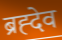
ब्रह्देव